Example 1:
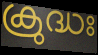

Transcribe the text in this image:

ക്രുദ്ധഃ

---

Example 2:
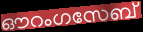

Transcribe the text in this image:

ഔറംഗസേബ്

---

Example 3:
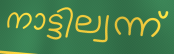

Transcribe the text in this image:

നാട്ടില്വന്ന്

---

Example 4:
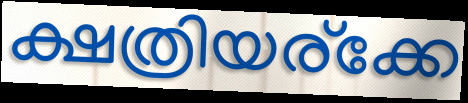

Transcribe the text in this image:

ക്ഷത്രിയര്ക്കേ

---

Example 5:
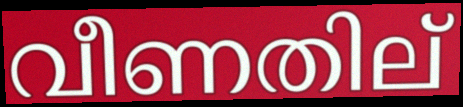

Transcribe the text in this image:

വീണതില്